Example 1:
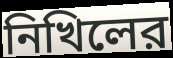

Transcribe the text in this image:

নিখিলের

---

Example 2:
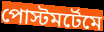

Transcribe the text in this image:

পোস্টমর্টেমে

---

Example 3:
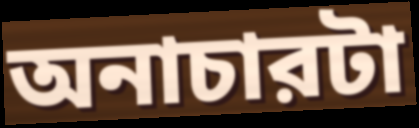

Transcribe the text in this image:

অনাচারটা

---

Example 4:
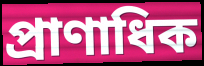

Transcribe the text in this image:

প্রাণাধিক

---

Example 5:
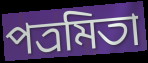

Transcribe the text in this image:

পত্রমিতা